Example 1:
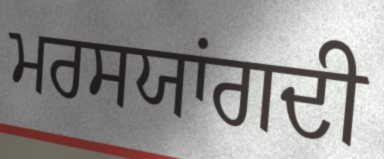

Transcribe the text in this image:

ਮਰਸਯਾਂਗਦੀ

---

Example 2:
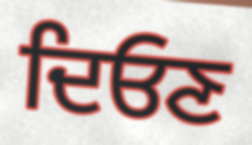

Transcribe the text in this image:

ਦਿਓਣ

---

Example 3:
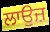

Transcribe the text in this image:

ਲਾਉਜ਼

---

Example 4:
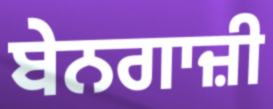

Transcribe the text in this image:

ਬੇਨਗਾਜ਼ੀ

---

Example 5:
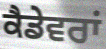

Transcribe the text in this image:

ਕੈਡੇਵਰਾਂ